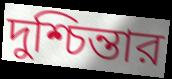
দুশ্চিন্তার